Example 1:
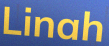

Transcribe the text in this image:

Linah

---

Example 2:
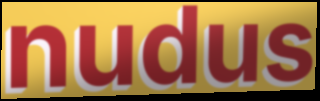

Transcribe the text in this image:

nudus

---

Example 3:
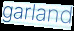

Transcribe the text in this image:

garland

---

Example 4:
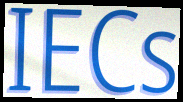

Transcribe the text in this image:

IECs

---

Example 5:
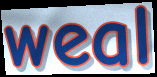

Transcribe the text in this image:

weal